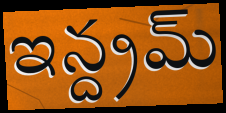
ఇన్ద్రమ్